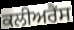
ਕਲੀਅਰੈਂਸ